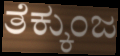
ತೆಕ್ಕುಂಜ